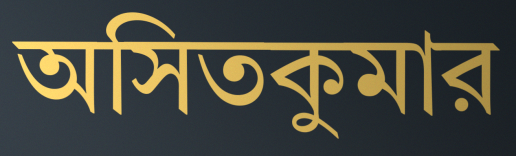
অসিতকুমার